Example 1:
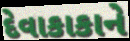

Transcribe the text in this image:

દેવાકાકાને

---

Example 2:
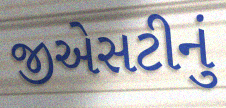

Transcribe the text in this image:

જીએસટીનું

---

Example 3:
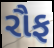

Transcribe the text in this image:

રૌફ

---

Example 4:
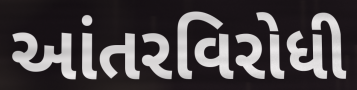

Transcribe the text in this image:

આંતરવિરોધી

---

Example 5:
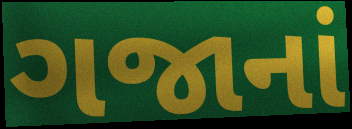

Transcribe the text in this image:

ગજાનાં